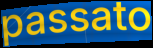
passato